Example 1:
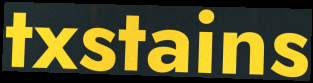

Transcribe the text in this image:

txstains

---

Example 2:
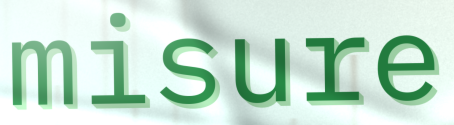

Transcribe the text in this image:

misure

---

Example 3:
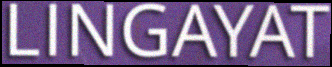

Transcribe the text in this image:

LINGAYAT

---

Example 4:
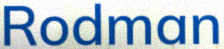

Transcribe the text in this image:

Rodman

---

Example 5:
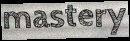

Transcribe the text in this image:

mastery